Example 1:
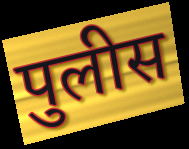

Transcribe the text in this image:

पुलीस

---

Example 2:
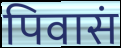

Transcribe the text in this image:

पिवासं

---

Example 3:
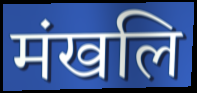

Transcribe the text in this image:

मंखलि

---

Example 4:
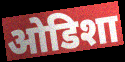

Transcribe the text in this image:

ओडिशा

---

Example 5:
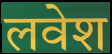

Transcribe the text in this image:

लवेश